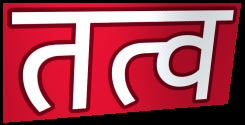
तत्व